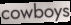
cowboys